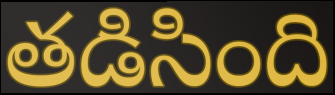
తడిసింది